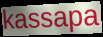
kassapa